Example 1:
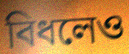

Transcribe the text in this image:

বিধলেও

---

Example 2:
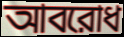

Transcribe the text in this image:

আবরোধ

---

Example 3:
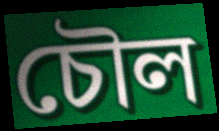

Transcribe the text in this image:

চৌল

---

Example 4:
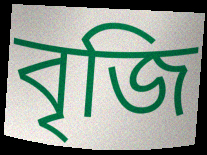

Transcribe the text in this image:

বৃজি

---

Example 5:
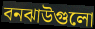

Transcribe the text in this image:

বনঝাউগুলো